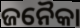
ଜନୈକା